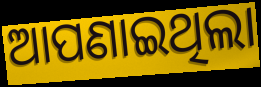
ଆପଣାଇଥିଲା